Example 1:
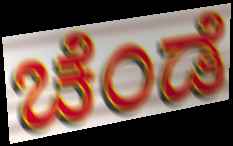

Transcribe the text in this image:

ಚೆಂಡೆ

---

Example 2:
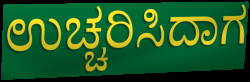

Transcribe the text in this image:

ಉಚ್ಚರಿಸಿದಾಗ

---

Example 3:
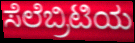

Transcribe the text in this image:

ಸೆಲೆಬ್ರಿಟಿಯ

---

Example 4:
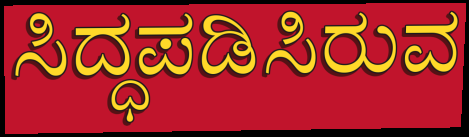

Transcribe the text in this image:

ಸಿದ್ಧಪಡಿಸಿರುವ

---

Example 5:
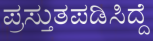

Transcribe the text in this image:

ಪ್ರಸ್ತುತಪಡಿಸಿದ್ದೆ